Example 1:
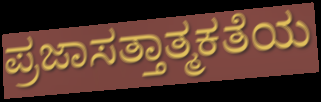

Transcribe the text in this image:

ಪ್ರಜಾಸತ್ತಾತ್ಮಕತೆಯ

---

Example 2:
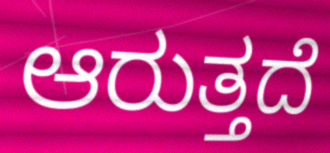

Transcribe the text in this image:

ಆರುತ್ತದೆ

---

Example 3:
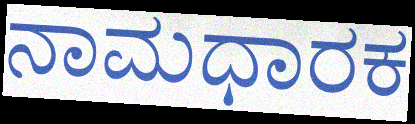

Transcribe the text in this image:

ನಾಮಧಾರಕ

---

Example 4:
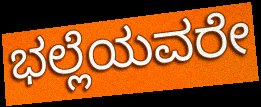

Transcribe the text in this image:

ಭಲ್ಲೆಯವರೇ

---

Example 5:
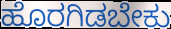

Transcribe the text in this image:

ಹೊರಗಿಡಬೇಕು